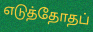
எடுத்தோதப்